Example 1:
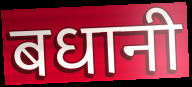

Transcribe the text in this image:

बधानी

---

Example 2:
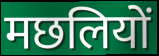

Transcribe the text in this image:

मछलियों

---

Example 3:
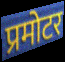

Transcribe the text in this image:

प्रमोटर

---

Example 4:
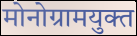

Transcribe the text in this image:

मोनोग्रामयुक्त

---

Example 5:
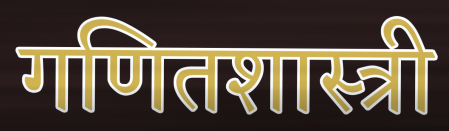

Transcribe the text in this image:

गणितशास्त्री